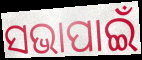
ସଭାପାଇଁ